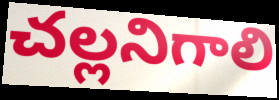
చల్లనిగాలి